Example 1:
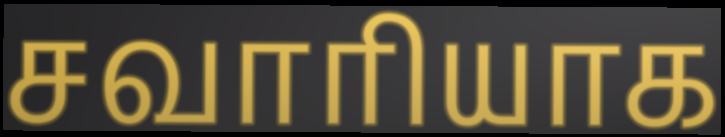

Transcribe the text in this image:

சவாரியாக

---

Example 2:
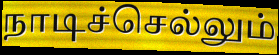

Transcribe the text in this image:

நாடிச்செல்லும்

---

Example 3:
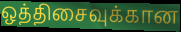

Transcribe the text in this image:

ஒத்திசைவுக்கான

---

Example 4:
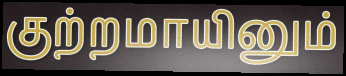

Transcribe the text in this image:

குற்றமாயினும்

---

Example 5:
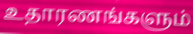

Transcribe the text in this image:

உதாரணங்களும்